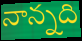
నాన్నది